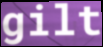
gilt